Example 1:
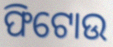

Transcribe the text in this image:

ଫିଟୋଉ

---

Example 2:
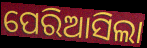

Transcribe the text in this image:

ପେରିଆସିଲା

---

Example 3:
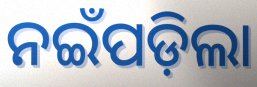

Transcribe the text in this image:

ନଇଁପଡ଼ିଲା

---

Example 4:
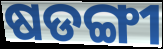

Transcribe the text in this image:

ଷଡଙ୍ଗୀ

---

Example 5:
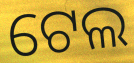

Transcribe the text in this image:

ଟେଲ